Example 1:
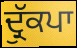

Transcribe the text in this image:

ਦ੍ਰੁੱਕਪਾ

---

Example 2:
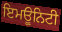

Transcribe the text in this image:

ਇਮਊਨਿਟੀ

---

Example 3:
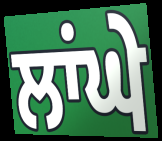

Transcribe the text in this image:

ਲਾਂਘੇ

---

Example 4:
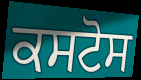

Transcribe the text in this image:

ਕਸਟੋਸ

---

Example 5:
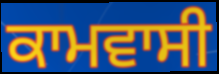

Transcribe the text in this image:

ਕਾਮਵਾਸੀ